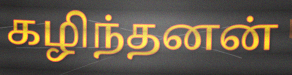
கழிந்தனன்